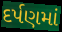
દર્પણમાં